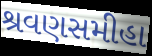
શ્રવણસમીહા